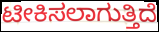
ಟೀಕಿಸಲಾಗುತ್ತಿದೆ